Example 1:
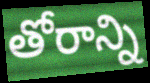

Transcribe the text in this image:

తోరాన్ని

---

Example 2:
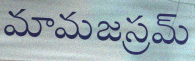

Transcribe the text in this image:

మామజస్రమ్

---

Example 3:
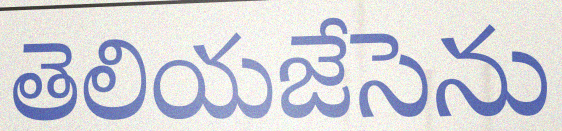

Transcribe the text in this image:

తెలియజేసెను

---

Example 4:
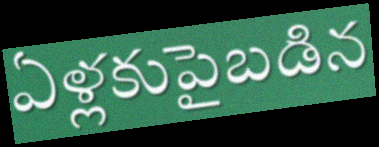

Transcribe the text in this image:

ఏళ్లకుపైబడిన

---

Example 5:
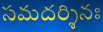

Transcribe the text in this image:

సమదర్శినః